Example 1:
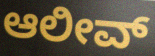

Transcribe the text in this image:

ಆಲೀವ್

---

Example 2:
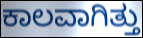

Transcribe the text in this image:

ಕಾಲವಾಗಿತ್ತು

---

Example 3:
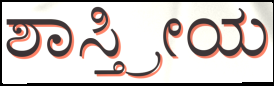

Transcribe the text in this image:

ಶಾಸ್ತ್ರೀಯ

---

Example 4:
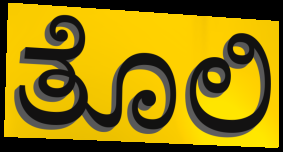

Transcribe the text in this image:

ತೊಲಿ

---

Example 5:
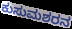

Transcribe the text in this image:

ಕುಸುಮಶರನ